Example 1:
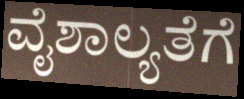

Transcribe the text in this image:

ವೈಶಾಲ್ಯತೆಗೆ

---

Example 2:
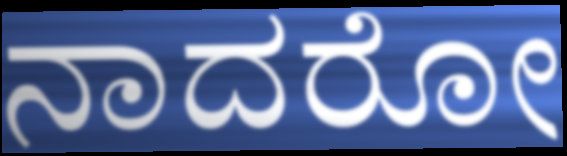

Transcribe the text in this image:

ನಾದರೋ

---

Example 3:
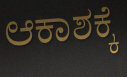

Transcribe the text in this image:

ಆಕಾಶಕ್ಕೆ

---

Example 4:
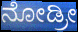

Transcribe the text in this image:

ನೋಡ್ರೀ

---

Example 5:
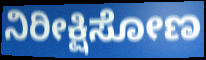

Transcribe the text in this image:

ನಿರೀಕ್ಷಿಸೋಣ